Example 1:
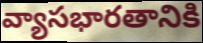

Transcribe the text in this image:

వ్యాసభారతానికి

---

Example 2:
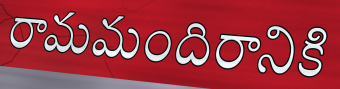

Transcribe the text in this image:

రామమందిరానికి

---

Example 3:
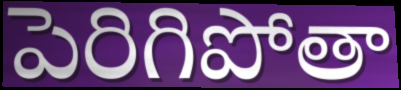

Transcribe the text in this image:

పెరిగిపోతా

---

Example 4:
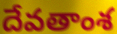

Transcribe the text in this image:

దేవతాంశ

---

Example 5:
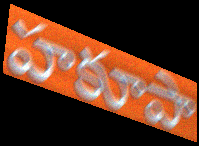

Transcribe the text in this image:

హకూపా